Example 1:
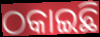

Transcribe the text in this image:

ଠକାଇଛି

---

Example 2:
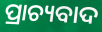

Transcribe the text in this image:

ପ୍ରାଚ୍ୟବାଦ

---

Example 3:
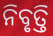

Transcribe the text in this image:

ନିବୃତ୍ତି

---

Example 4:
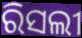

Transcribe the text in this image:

ରିସଲୀ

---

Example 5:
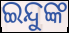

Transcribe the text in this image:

ଇନ୍ଦୁଙ୍କ